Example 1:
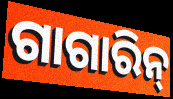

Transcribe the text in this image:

ଗାଗାରିନ୍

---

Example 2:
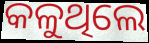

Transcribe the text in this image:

କଳୁଥିଲେ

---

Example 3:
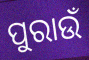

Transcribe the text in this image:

ପୁରାଉଁ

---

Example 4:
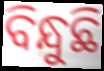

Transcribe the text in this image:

ବିନ୍ଧୁଛି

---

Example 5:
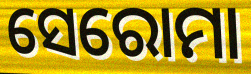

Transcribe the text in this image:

ସେରୋମା